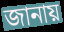
জানায়